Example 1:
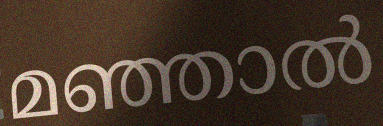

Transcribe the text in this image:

മഞ്ഞാൽ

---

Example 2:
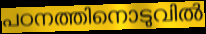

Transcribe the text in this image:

പഠനത്തിനൊടുവിൽ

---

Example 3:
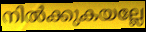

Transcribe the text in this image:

നിൽക്കുകയല്ലേ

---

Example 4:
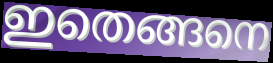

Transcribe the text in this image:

ഇതെങ്ങനെ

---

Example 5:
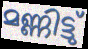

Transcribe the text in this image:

മണ്ണിട്ടു്